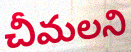
చీమలని